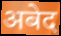
अबेद